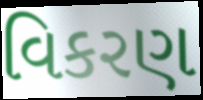
વિકરણ